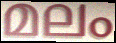
മലം